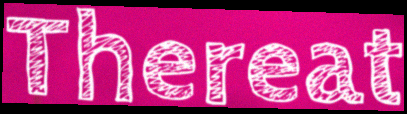
Thereat